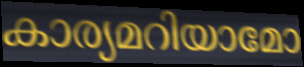
കാര്യമറിയാമോ